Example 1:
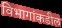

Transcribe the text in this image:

विभागांकडील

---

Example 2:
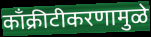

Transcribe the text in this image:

काँक्रीटीकरणामुळे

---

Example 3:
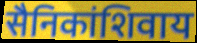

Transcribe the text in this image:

सैनिकांशिवाय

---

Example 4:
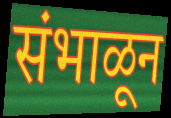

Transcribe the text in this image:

संभाळून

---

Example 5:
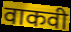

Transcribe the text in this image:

वाकवी